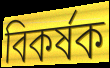
বিকৰ্ষক